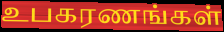
உபகரணங்கள்